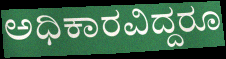
ಅಧಿಕಾರವಿದ್ದರೂ